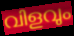
വിളവും